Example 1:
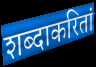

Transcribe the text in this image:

शब्दाकरितां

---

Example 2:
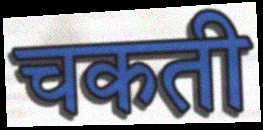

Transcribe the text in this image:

चकती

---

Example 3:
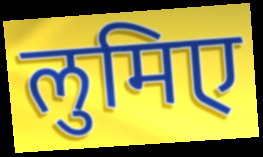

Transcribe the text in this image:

लुमिए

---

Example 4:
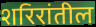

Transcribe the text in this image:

शरिरांतील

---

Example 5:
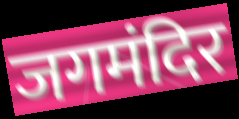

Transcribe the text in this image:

जगमंदिर